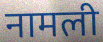
नामली